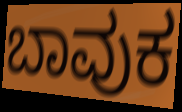
ಬಾವುಕ